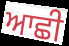
ਆਛੀ